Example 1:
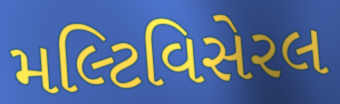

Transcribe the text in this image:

મલ્ટિવિસેરલ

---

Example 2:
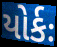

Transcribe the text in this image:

યોર્કઃ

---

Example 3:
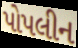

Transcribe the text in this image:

પોપલીન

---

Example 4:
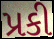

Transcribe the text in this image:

પ્રકી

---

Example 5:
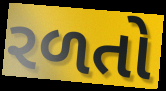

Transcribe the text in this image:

રળતો